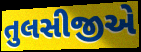
તુલસીજીએ